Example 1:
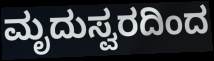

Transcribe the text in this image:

ಮೃದುಸ್ವರದಿಂದ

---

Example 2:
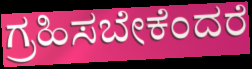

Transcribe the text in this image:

ಗ್ರಹಿಸಬೇಕೆಂದರೆ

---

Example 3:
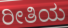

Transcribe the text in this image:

ರೀತಿಯ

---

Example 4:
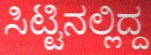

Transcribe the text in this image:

ಸಿಟ್ಟಿನಲ್ಲಿದ್ದ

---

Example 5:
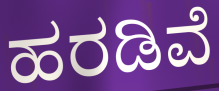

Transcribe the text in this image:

ಹರಡಿವೆ